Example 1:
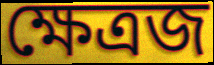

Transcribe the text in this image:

ক্ষেত্রজ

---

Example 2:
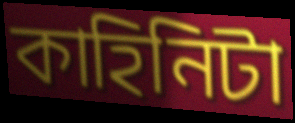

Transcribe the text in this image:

কাহিনিটা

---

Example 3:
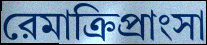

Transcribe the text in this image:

রেমাক্রিপ্রাংসা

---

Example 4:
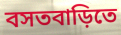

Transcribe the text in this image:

বসতবাড়িতে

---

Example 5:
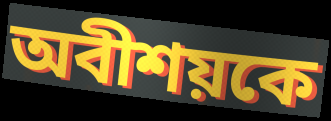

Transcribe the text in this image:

অবীশয়কে